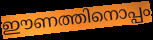
ഈണത്തിനൊപ്പം